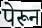
पेरून